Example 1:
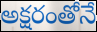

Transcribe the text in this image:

అక్షరంతోనే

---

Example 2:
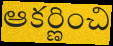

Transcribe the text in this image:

ఆకర్ణించి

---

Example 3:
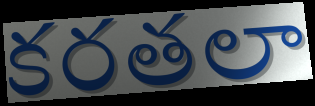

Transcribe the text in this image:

కరతలా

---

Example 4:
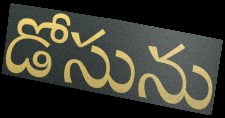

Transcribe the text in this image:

డోసును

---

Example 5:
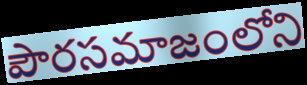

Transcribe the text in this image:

పౌరసమాజంలోని